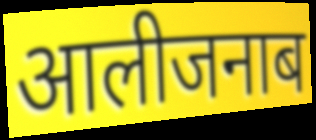
आलीजनाब